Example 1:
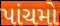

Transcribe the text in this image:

પાંચમો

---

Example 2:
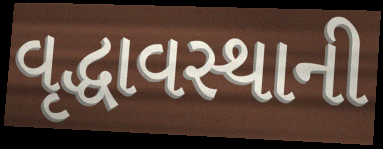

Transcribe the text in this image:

વૃદ્ધાવસ્થાની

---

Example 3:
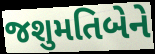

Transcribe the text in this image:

જશુમતિબેને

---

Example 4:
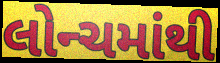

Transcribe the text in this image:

લોન્ચમાંથી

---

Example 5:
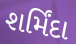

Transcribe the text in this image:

શર્મિંદા